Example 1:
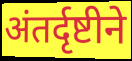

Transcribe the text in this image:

अंतर्दृष्टीने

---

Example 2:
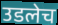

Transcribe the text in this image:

उडलेच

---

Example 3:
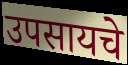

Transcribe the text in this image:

उपसायचे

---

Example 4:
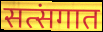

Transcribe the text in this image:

सत्संगात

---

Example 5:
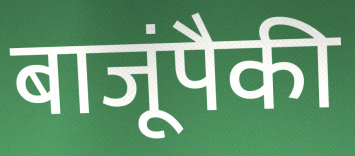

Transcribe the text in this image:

बाजूंपैकी